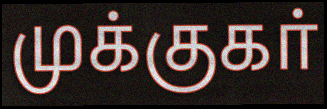
முக்குகர்